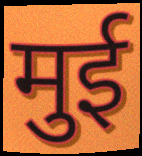
मुई